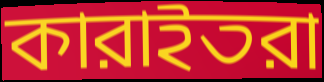
কারাইতরা